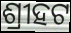
ଶ୍ରୀହଟ